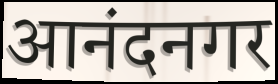
आनंदनगर